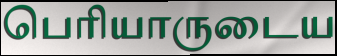
பெரியாருடைய